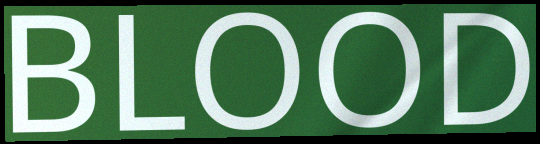
BLOOD